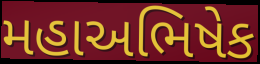
મહાઅભિષેક